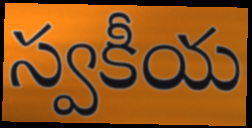
స్వకీయ